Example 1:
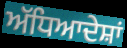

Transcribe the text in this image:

ਅੱਧਿਆਦੇਸ਼ਾਂ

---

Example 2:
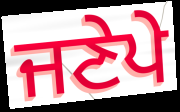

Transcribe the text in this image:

ਜਣੇਪੇ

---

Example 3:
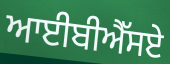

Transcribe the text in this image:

ਆਈਬੀਐੱਸਏ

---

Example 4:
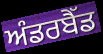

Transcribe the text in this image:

ਅੰਡਰਬੈੱਡ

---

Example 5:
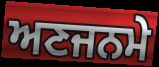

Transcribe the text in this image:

ਅਣਜਨਮੇ